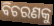
ବିଚରଣକୁ